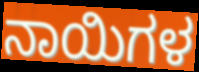
ನಾಯಿಗಳ